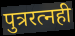
पुत्ररत्नही